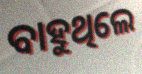
ବାହୁଥିଲେ